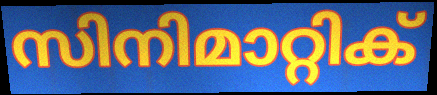
സിനിമാറ്റിക്